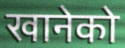
खानेको